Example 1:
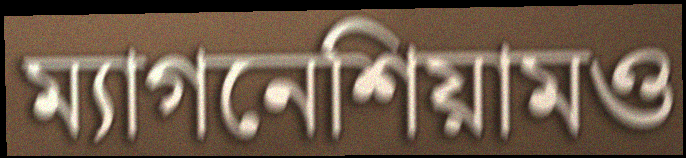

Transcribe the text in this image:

ম্যাগনেশিয়ামও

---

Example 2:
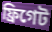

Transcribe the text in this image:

ফ্রিগেট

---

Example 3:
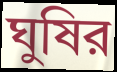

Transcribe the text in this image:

ঘুষির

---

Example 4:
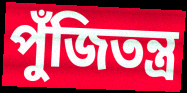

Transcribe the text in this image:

পুঁজিতন্ত্র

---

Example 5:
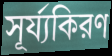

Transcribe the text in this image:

সূর্য্যকিরণ